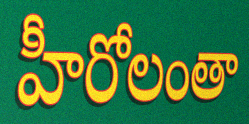
హీరోలంతా